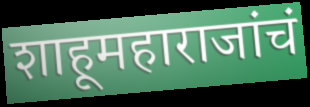
शाहूमहाराजांचं